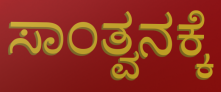
ಸಾಂತ್ವನಕ್ಕೆ